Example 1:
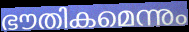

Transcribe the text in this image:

ഭൗതികമെന്നും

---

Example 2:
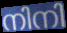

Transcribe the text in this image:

നിനി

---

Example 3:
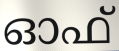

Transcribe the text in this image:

ഓഫ്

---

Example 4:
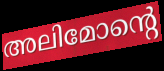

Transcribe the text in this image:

അലിമോന്റെ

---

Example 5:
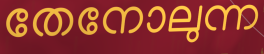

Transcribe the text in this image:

തേനോലുന്ന